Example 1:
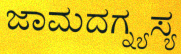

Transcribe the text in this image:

ಜಾಮದಗ್ನ್ಯಸ್ಯ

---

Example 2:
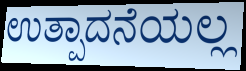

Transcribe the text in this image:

ಉತ್ಪಾದನೆಯಲ್ಲ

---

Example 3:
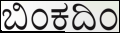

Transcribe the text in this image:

ಬಿಂಕದಿಂ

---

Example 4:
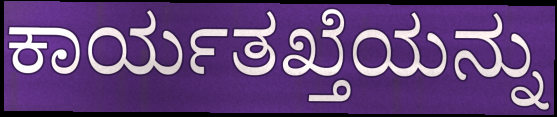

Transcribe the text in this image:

ಕಾರ್ಯತಖ್ತೆಯನ್ನು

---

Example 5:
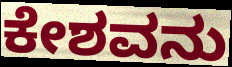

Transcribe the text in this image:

ಕೇಶವನು